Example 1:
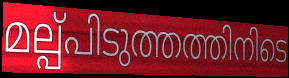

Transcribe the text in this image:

മല്പ്പിടുത്തത്തിനിടെ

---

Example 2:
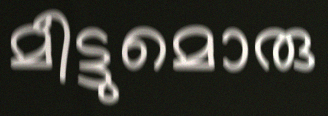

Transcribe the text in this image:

മീട്ടുമൊരു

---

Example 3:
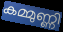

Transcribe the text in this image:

കമ്മുണ്ണി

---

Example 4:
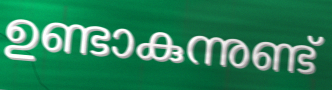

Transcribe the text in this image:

ഉണ്ടാകുന്നുണ്ട്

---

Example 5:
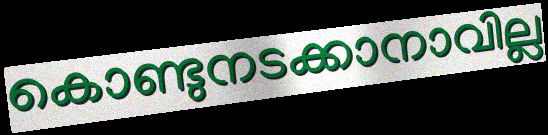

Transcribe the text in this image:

കൊണ്ടുനടക്കാനാവില്ല